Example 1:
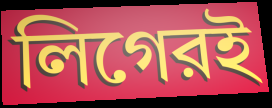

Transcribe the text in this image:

লিগেরই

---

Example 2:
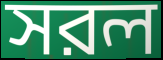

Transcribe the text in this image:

সরল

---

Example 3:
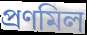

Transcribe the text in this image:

প্রণমিল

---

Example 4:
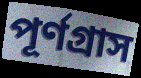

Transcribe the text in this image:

পূর্ণগ্রাস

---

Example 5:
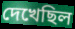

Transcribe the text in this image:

দেখেছিল